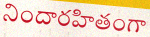
నిందారహితంగా